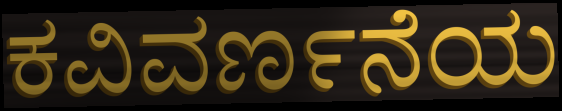
ಕವಿವರ್ಣನೆಯ